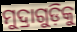
ମୁଦ୍ରାଗୁଡ଼ିକୁ